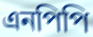
এনপিপি